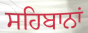
ਸਹਿਬਾਨਾਂ